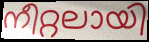
നീറ്റലായി